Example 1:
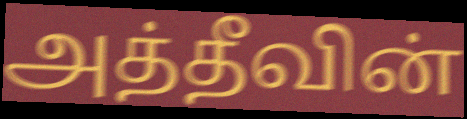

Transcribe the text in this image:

அத்தீவின்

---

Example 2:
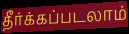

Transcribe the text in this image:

தீர்க்கப்படலாம்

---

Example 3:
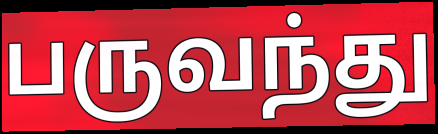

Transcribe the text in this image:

பருவந்து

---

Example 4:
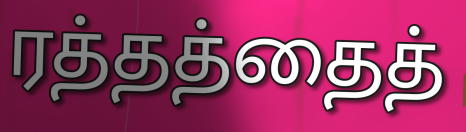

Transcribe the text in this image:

ரத்தத்தைத்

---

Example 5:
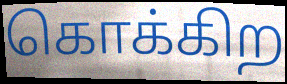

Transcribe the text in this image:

கொக்கிற